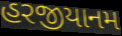
હરજીયાનમ